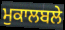
ਮੁਕਾਲਬਲੇ